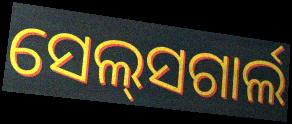
ସେଲ୍‍ସଗାର୍ଲ